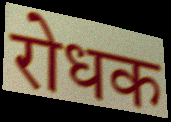
रोधक